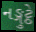
નઙ્ગુટ્ઠે